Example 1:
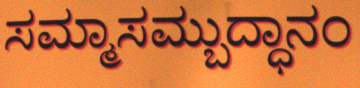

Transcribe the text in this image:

ಸಮ್ಮಾಸಮ್ಬುದ್ಧಾನಂ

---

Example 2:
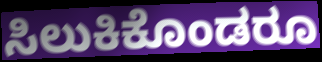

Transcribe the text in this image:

ಸಿಲುಕಿಕೊಂಡರೂ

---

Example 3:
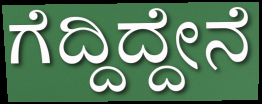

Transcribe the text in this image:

ಗೆದ್ದಿದ್ದೇನೆ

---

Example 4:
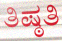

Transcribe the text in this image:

ತಿಷ್ಠತಿ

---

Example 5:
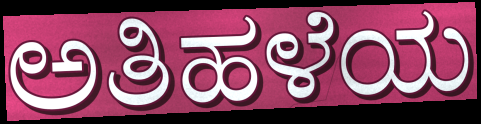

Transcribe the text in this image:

ಅತಿಹಳೆಯ